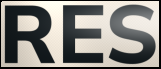
RES